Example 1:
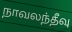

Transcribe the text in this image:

நாவலந்தீவு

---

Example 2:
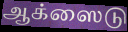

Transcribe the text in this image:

ஆக்ஸைடு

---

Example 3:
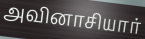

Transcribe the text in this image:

அவினாசியார்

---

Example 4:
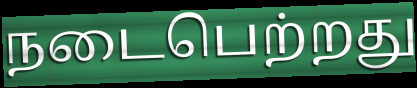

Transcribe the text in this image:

நடைபெற்றது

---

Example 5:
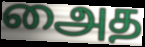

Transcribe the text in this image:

அைத